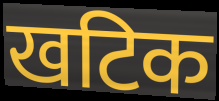
खटिक